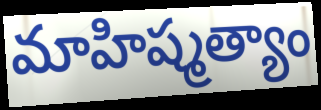
మాహిష్మత్యాం